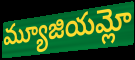
మ్యూజియమ్లో